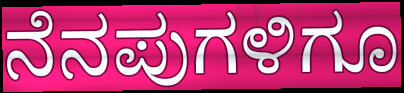
ನೆನಪುಗಳಿಗೂ